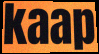
kaap